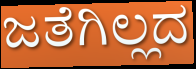
ಜತೆಗಿಲ್ಲದ